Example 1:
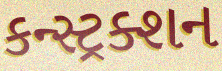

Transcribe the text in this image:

કન્સ્ટ્રક્શન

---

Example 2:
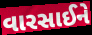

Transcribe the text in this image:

વારસાઈને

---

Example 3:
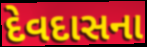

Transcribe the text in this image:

દેવદાસના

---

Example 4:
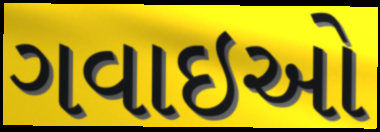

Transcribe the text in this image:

ગવાઇઓ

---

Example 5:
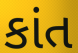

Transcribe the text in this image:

કાંત